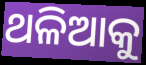
ଥଳିଆକୁ